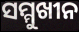
ସମ୍ମୁଖୀନ